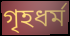
গৃহধর্ম